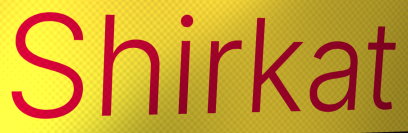
Shirkat